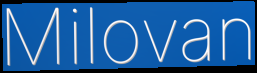
Milovan